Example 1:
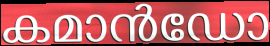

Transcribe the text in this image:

കമാൻഡോ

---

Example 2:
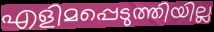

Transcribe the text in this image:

എളിമപ്പെടുത്തിയില്ല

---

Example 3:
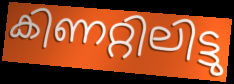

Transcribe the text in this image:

കിണറ്റിലിട്ടു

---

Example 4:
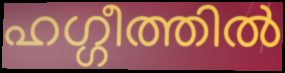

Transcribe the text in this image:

ഹഗ്ഗീത്തിൽ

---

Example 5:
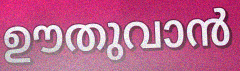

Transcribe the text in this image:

ഊതുവാൻ